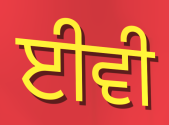
ਈਵੀ